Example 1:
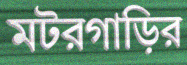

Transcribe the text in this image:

মটরগাড়ির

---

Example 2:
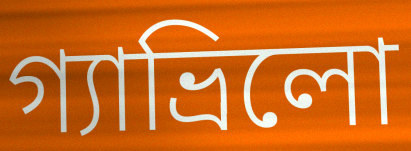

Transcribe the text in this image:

গ্যাভ্রিলো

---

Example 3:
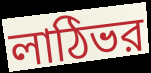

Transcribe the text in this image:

লাঠিভর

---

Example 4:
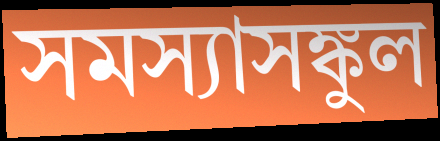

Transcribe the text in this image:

সমস্যাসঙ্কুল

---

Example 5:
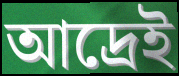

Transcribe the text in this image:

আদ্রেই